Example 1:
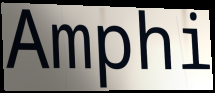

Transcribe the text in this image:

Amphi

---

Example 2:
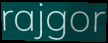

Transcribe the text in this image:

rajgor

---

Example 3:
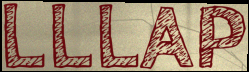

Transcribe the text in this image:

LLLAP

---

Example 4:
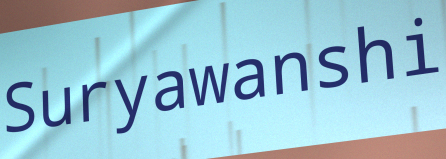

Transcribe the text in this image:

Suryawanshi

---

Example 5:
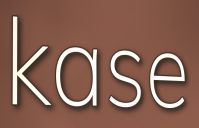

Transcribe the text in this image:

kase